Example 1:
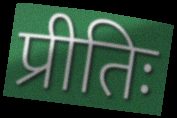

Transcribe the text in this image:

प्रीतिः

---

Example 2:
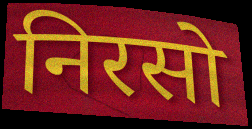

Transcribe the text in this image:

निरसो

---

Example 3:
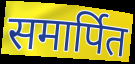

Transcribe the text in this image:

समार्पित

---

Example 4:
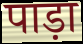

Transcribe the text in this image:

पाड़ा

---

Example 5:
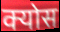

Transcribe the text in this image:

क्योस